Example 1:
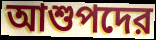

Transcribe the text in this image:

আশুপদের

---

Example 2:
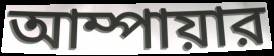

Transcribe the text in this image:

আম্পায়ার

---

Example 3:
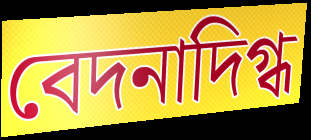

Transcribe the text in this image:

বেদনাদিগ্ধ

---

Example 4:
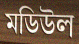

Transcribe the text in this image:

মডিউল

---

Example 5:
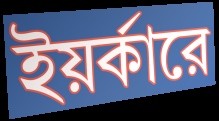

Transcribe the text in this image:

ইয়র্কারে